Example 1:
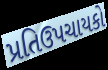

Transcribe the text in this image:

પ્રતિઉપચાયકો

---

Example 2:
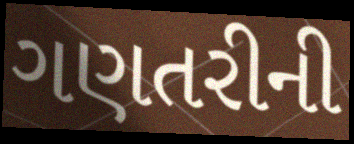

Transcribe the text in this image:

ગણતરીની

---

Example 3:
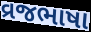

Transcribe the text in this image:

વ્રજભાષા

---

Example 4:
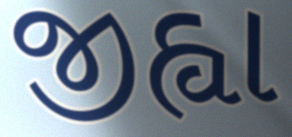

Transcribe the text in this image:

જીહ્વા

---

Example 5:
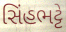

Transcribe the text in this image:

સિંહભટ્ટે